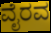
ವೈರವ